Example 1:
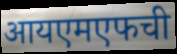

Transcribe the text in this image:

आयएमएफची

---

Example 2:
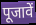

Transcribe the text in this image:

पूजावें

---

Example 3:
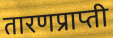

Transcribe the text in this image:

तारणप्राप्ती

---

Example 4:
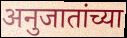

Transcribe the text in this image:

अनुजातांच्या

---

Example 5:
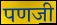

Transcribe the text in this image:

पणजी